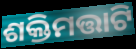
ଶକ୍ତିମତ୍ତାଟି